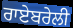
ਰਾਏਬਰੇਲੀ